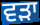
ਵੜਾ